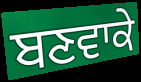
ਬਣਵਾਕੇ